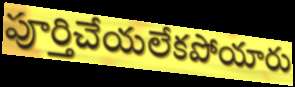
పూర్తిచేయలేకపోయారు